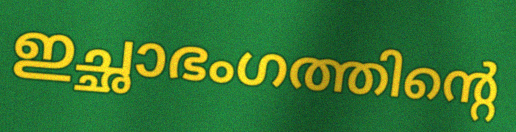
ഇച്ഛാഭംഗത്തിന്റെ